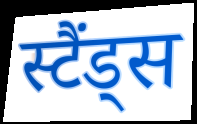
स्टैंड्स